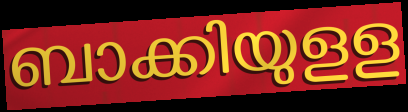
ബാക്കിയുളള